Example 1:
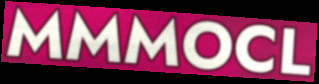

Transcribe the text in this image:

MMMOCL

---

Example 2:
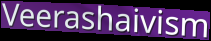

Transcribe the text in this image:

Veerashaivism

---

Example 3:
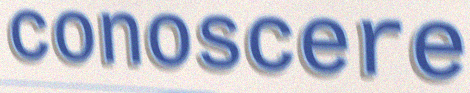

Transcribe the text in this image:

conoscere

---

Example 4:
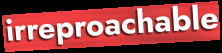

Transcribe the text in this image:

irreproachable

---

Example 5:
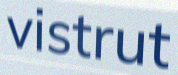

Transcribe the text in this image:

vistrut